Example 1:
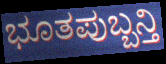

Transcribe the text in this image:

ಭೂತಪುಬ್ಬನ್ತಿ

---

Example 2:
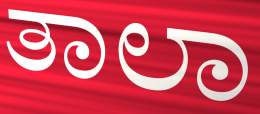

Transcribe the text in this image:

ತಾಲಾ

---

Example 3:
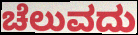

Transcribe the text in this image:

ಚೆಲುವದು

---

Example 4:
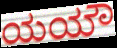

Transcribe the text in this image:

ಯಯೌ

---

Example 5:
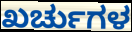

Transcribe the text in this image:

ಖರ್ಚುಗಳ